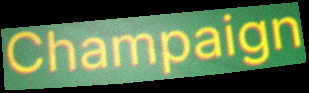
Champaign